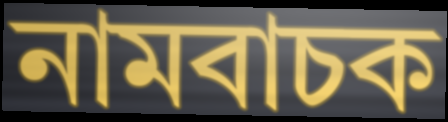
নামবাচক